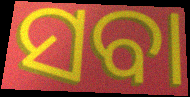
ସବା